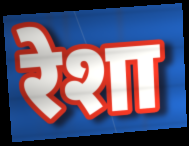
रेशा